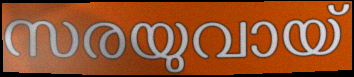
സരയുവായ്